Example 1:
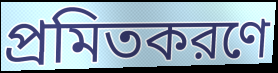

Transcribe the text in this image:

প্রমিতকরণে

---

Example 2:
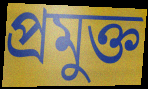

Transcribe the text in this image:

প্রমুক্ত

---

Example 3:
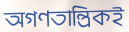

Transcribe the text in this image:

অগণতান্ত্রিকই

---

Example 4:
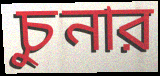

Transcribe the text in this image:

চুনার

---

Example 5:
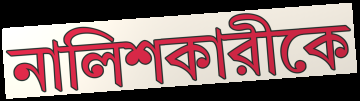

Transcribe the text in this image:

নালিশকারীকে